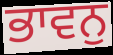
ਭਾਵਨੁ